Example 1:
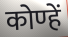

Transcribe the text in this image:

कोण्हें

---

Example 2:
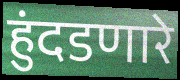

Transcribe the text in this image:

हुंदडणारे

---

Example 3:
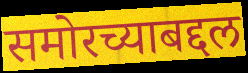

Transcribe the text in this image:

समोरच्याबद्दल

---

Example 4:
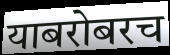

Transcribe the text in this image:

याबरोबरच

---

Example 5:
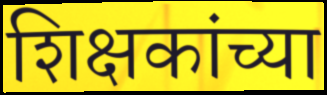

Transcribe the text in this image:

शिक्षकांच्या